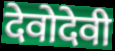
देवोदेवी